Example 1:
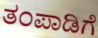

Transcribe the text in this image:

ತಂಪಾಡಿಗೆ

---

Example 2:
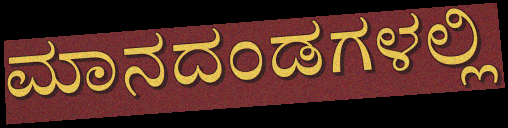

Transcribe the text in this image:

ಮಾನದಂಡಗಳಲ್ಲಿ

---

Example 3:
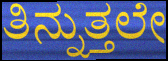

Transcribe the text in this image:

ತಿನ್ನುತ್ತಲೇ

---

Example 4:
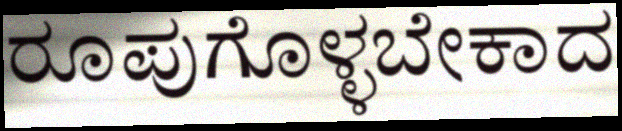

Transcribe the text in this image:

ರೂಪುಗೊಳ್ಳಬೇಕಾದ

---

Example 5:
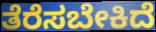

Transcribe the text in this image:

ತೆರೆಸಬೇಕಿದೆ